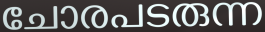
ചോരപടരുന്ന